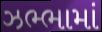
ઝભ્ભામાં